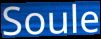
Soule